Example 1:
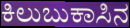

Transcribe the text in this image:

ಕಿಲುಬುಕಾಸಿನ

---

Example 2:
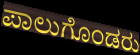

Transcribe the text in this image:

ಪಾಲುಗೊಂಡರು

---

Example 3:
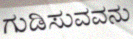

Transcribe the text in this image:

ಗುಡಿಸುವವನು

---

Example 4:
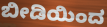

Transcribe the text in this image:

ಬೀಡಿಯಿಂದ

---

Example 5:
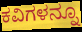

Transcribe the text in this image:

ಕವಿಗಳನ್ನೂ